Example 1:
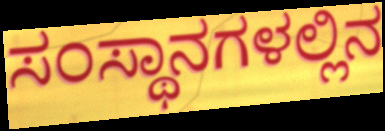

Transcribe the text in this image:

ಸಂಸ್ಥಾನಗಳಲ್ಲಿನ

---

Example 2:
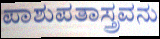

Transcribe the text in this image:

ಪಾಶುಪತಾಸ್ತ್ರವನು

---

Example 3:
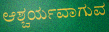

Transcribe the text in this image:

ಆಶ್ಚರ್ಯವಾಗುವ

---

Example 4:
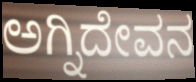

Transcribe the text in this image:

ಅಗ್ನಿದೇವನ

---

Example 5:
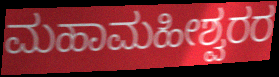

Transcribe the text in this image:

ಮಹಾಮಹೀಶ್ವರರ